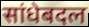
सांधेबदल